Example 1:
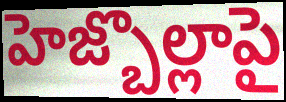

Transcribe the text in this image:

హెజ్బొల్లాపై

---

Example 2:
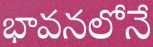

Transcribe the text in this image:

భావనలోనే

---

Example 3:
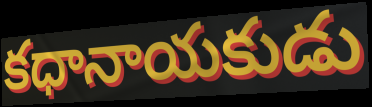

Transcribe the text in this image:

కధానాయకుడు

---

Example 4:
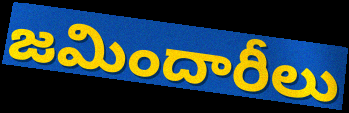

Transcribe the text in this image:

జమిందారీలు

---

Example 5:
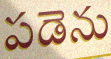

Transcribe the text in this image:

పడెను